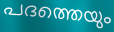
പദത്തെയും